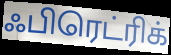
ஃபிரெட்ரிக்